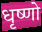
धृष्णो